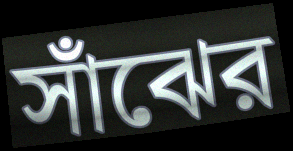
সাঁঝের